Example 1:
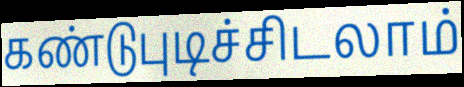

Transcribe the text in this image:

கண்டுபுடிச்சிடலாம்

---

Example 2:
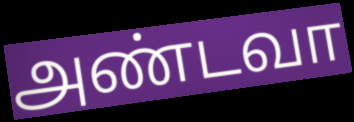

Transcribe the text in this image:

அண்டவா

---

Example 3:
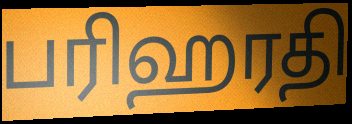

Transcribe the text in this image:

பரிஹரதி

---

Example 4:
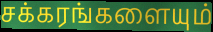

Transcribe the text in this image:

சக்கரங்களையும்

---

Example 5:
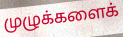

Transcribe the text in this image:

முழுக்களைக்